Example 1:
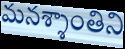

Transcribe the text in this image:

మనశ్శాంతిని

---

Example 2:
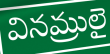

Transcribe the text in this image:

వినమ్రులై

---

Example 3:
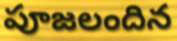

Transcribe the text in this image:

పూజలందిన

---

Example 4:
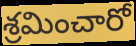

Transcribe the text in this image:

శ్రమించారో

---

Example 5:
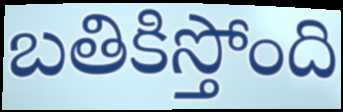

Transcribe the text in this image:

బతికిస్తోంది